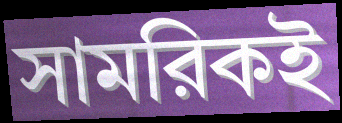
সামরিকই